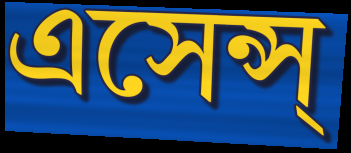
এসেন্স্